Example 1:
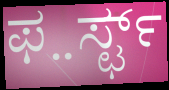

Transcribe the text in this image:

ಫ಼ರ್ಸ್ಟ್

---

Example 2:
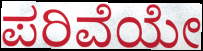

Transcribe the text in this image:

ಪರಿವೆಯೇ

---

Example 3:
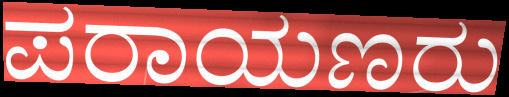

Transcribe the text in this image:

ಪರಾಯಣರು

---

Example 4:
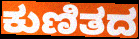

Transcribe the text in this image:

ಕುಣಿತದ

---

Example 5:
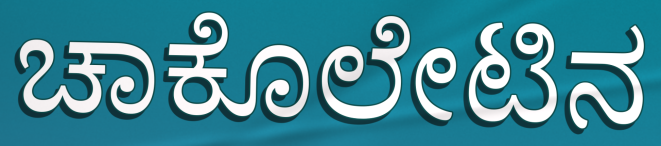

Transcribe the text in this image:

ಚಾಕೊಲೇಟಿನ